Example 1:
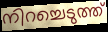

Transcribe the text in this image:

നിറച്ചെടുത്ത്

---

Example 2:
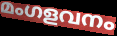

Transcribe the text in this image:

മംഗളവനം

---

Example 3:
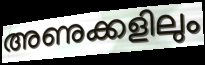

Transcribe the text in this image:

അണുക്കളിലും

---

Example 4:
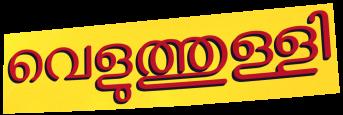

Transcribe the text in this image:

വെളുത്തുള്ളി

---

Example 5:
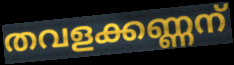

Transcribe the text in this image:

തവളക്കണ്ണന്